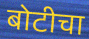
बोटीचा